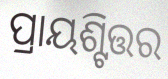
ପ୍ରାୟଶ୍ଟିତ୍ତର